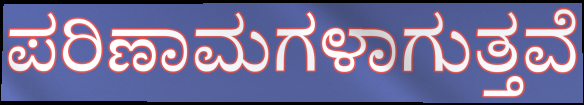
ಪರಿಣಾಮಗಳಾಗುತ್ತವೆ